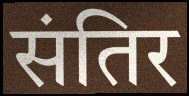
संतिर